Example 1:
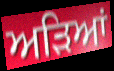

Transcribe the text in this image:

ਅੜਿਆਂ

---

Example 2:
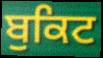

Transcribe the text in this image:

ਬੁਕਿਟ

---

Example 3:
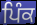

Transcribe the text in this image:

ਪਿੰਕ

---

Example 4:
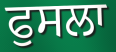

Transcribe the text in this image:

ਫੁਸਲਾ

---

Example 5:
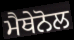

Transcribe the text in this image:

ਮੈਥੇਨੋਲ